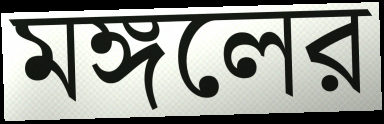
মঙ্গলের